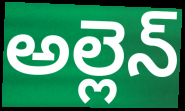
అల్లెన్